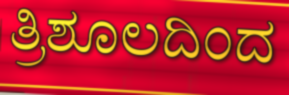
ತ್ರಿಶೂಲದಿಂದ